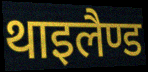
थाइलैण्ड